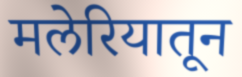
मलेरियातून